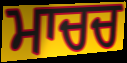
ਮਾਚਚ